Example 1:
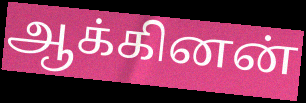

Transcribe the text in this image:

ஆக்கினன்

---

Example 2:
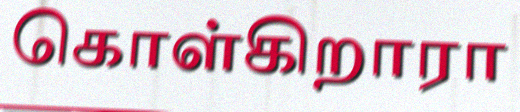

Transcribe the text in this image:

கொள்கிறாரா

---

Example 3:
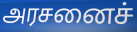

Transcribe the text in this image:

அரசனைச்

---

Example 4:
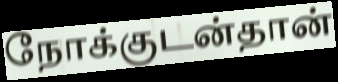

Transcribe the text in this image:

நோக்குடன்தான்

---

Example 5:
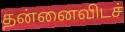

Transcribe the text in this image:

தன்னைவிடச்